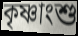
কৃষ্ণাংশু